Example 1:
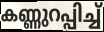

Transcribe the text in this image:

കണ്ണുറപ്പിച്ച്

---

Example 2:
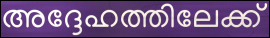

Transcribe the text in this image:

അദ്ദേഹത്തിലേക്ക്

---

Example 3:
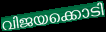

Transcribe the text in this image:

വിജയക്കൊടി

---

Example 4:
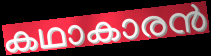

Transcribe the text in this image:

കഥാകാരൻ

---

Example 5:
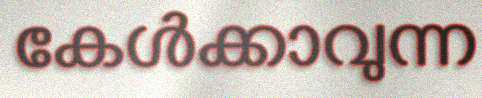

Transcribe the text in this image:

കേൾക്കാവുന്ന